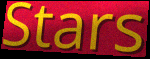
Stars